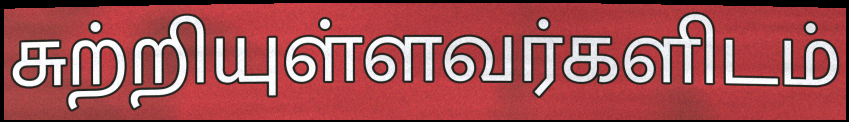
சுற்றியுள்ளவர்களிடம்